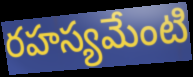
రహస్యమేంటి